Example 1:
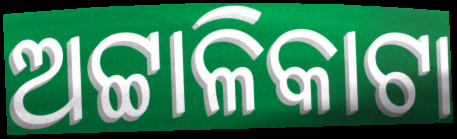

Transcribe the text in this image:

ଅଟ୍ଟାଳିକାଟା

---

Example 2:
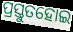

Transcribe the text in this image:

ପ୍ରସ୍ତୁତହୋଇ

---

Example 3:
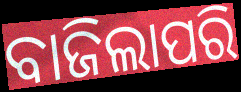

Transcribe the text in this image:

ବାଜିଲାପରି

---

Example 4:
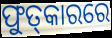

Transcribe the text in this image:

ଫୁତ୍‌କାରରେ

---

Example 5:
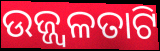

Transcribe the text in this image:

ଉଜ୍ଜ୍ୱଳତାଟି